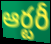
ఆర్టరీ